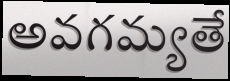
అవగమ్యతే